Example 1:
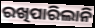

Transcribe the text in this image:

ରଖିପାରିଲାନି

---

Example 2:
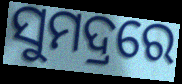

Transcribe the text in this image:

ସୁମଦ୍ରରେ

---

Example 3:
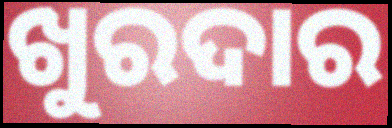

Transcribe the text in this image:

ଖୁରଦାର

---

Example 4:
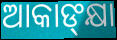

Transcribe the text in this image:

ଆକାଙ୍କ୍ଷା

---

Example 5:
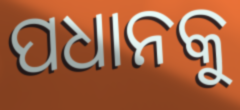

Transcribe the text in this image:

ପଧାନକୁ